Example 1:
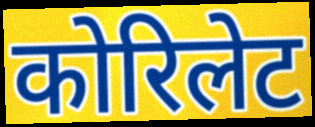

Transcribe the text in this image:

कोरिलेट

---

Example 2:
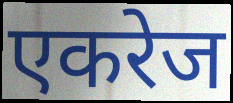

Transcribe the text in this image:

एकरेज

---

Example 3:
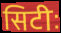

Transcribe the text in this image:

सिटीः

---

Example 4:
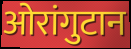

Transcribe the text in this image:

ओरांगुटान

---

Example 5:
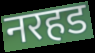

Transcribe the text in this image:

नरहड